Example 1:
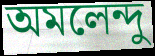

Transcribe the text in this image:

অমলেন্দু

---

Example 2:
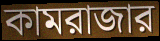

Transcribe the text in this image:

কামরাজার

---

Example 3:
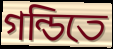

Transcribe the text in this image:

গন্ডিতে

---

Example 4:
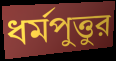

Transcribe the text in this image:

ধর্মপুত্তুর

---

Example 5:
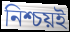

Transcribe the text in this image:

নিশ্চয়ই